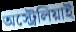
অস্ট্রেলিয়াই